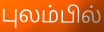
புலம்பில்